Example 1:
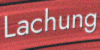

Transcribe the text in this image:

Lachung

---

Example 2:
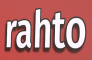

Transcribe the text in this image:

rahto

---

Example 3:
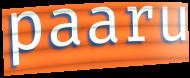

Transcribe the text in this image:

paaru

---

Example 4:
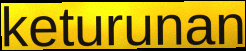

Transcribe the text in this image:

keturunan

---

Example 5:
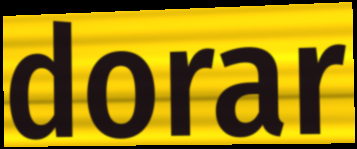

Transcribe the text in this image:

dorar